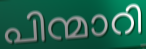
പിന്മാറി